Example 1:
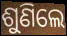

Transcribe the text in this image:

ଶୁଣିଲେ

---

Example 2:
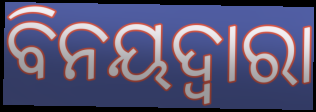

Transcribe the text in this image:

ବିନୟଦ୍ୱାରା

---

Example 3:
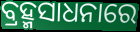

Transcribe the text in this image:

ବ୍ରହ୍ମସାଧନାରେ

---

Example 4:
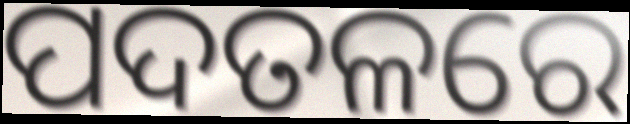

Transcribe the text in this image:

ପଦତଳରେ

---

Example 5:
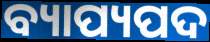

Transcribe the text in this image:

ବ୍ୟାପ୍ୟପଦ